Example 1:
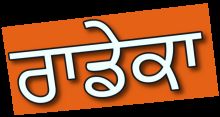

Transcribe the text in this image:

ਰਾਡੇਕਾ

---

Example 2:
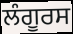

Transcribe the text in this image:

ਲੰਗੂਰਸ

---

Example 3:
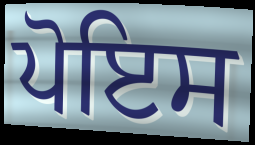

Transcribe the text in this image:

ਪੋਇਸ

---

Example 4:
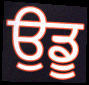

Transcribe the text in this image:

ਉਡੂ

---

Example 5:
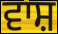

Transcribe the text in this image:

ਵਾਸ਼